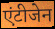
एंटीजेन